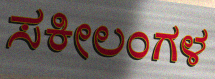
ಸಕೀಲಂಗಳ